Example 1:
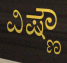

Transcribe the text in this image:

ವಿಷ್ಣೌ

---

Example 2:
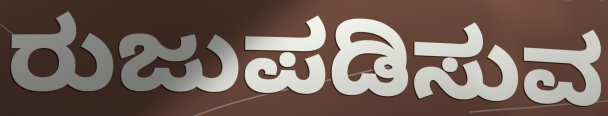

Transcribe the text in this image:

ರುಜುಪಡಿಸುವ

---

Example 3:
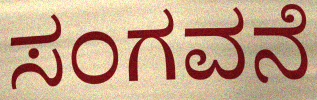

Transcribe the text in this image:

ಸಂಗವನೆ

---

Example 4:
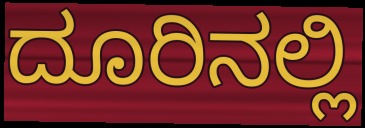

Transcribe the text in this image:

ದೂರಿನಲ್ಲಿ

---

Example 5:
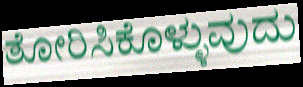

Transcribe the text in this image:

ತೋರಿಸಿಕೊಳ್ಳುವುದು